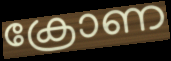
ക്രോണ